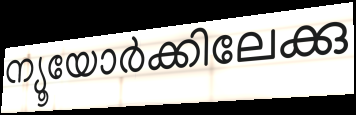
ന്യൂയോർക്കിലേക്കു